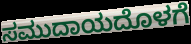
ಸಮುದಾಯದೊಳಗೆ